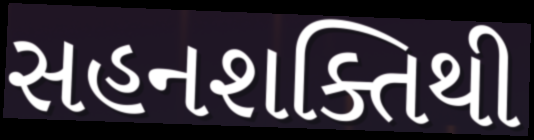
સહનશક્તિથી